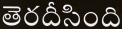
తెరదీసింది